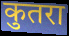
कुतरा